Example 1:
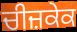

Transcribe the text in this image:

ਚੀਜ਼ਕੇਕ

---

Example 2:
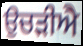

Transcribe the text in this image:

ਉਚੜੀਐ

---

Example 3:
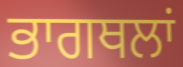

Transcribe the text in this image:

ਭਾਗਥਲਾਂ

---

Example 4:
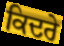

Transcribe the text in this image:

ਕਿਦਰੇ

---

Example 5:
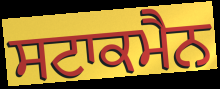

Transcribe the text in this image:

ਸਟਾਕਮੈਨ